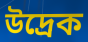
উদ্ৰেক